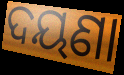
ଦୟଣା